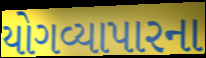
યોગવ્યાપારના